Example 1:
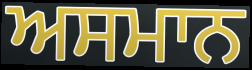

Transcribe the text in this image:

ਅਸਮਾਨ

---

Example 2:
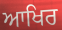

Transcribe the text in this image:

ਆਖਿਰ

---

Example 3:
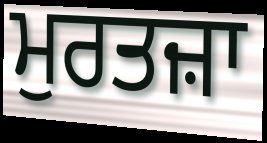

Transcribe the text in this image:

ਮੁਰਤਜ਼ਾ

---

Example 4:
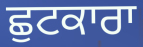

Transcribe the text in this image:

ਛੁਟਕਾਰਾ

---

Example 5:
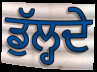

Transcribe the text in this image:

ਡੁੱਲ੍ਹਦੇ